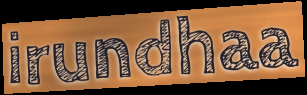
irundhaa